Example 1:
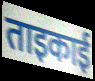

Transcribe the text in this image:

ताइकाई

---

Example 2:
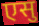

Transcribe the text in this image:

एसु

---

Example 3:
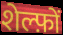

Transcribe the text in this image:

शेल्फ़ों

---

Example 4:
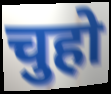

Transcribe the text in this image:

चुहो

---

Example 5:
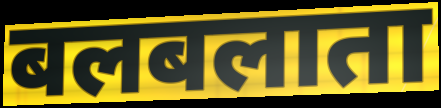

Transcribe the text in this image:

बलबलाता